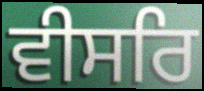
ਵੀਸਰਿ